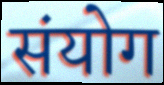
संयोग